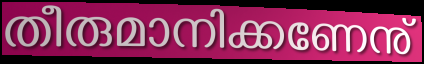
തീരുമാനിക്കണേനു്